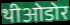
थीओडोर